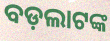
ବଡ଼ଲାଟଙ୍କ